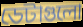
ডেটাগুলো